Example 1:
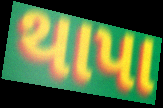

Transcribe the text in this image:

થાપા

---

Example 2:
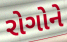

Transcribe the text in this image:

રોગોને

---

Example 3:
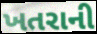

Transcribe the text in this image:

ખતરાની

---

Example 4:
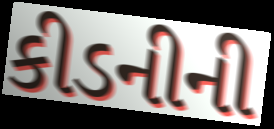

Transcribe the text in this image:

કીડનીની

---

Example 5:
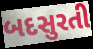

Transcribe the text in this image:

બદસુરતી